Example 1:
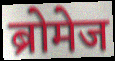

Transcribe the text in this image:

ब्रोमेज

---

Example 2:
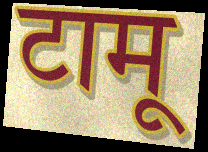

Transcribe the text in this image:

टामू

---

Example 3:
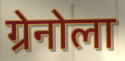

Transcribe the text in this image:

ग्रेनोला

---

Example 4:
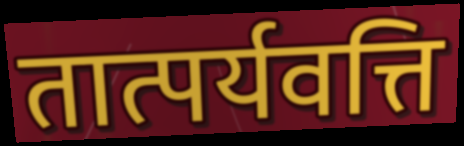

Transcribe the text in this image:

तात्पर्यवत्ति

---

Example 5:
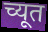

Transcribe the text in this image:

च्यूत